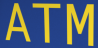
ATM